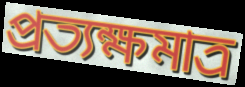
প্রত্যক্ষমাত্র